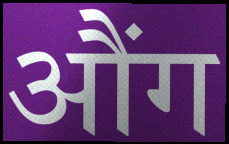
औंग